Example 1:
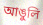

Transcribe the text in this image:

আঙুলি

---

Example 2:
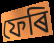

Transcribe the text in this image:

ফেৰি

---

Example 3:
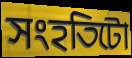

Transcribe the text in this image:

সংহতিটো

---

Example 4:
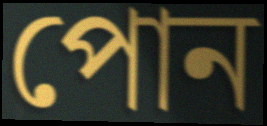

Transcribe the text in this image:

পোন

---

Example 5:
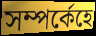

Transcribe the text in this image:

সম্পৰ্কেহে